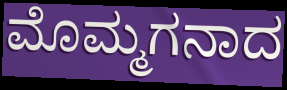
ಮೊಮ್ಮಗನಾದ